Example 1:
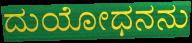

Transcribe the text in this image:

ದುಯೋಧನನು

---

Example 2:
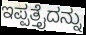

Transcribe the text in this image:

ಇಪ್ಪತ್ತೈದನ್ನು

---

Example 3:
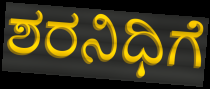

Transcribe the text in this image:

ಶರನಿಧಿಗೆ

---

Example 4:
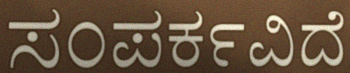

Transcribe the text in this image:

ಸಂಪರ್ಕವಿದೆ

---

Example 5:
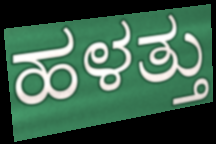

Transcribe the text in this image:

ಹಳತ್ತು